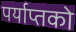
पर्याप्तको